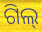
ଗିଲ୍